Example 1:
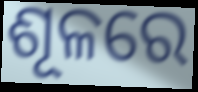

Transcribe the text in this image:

ଶୂଳରେ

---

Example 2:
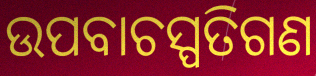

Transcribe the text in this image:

ଉପବାଚସ୍ପତିଗଣ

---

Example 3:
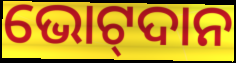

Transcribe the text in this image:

ଭୋଟ୍‌ଦାନ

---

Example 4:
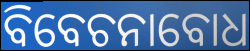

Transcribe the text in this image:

ବିବେଚନାବୋଧ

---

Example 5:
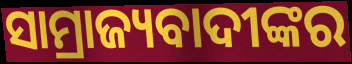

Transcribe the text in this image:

ସାମ୍ରାଜ୍ୟବାଦୀଙ୍କର